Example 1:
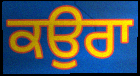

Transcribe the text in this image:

ਕਉਰਾ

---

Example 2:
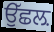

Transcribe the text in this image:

ਉੱਛਲ਼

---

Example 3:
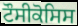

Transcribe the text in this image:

ਟੌਸੀਕੋਸਿਸ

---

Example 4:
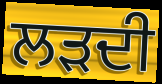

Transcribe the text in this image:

ਲੜਦੀ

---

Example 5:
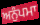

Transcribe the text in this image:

ਅਨੁੰਪਮਾ